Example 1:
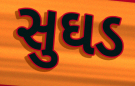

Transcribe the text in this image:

સુઘડ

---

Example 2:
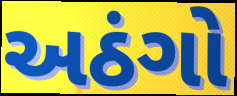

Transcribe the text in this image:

અઠંગો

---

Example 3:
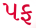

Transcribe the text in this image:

પફ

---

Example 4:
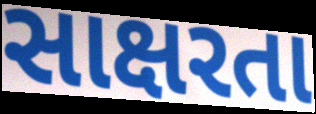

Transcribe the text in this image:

સાક્ષરતા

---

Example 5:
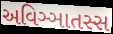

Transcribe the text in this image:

અવિઞ્ઞાતસ્સ